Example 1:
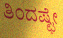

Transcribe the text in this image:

ತಿಂದಷ್ಟೇ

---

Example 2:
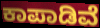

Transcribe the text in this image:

ಕಾಪಾಡಿವೆ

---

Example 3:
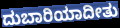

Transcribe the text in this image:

ದುಬಾರಿಯಾದೀತು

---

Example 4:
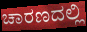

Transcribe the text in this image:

ಚಾರಣದಲ್ಲಿ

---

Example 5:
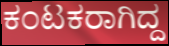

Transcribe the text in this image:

ಕಂಟಕರಾಗಿದ್ದ